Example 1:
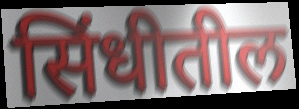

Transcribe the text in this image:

सिंधीतील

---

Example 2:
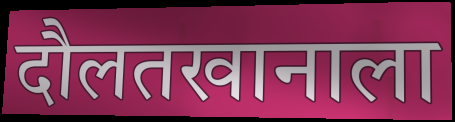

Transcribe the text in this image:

दौलतखानाला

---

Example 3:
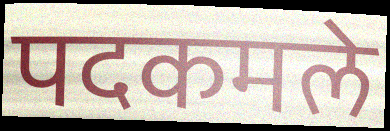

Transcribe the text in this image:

पदकमले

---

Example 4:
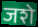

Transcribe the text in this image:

जशे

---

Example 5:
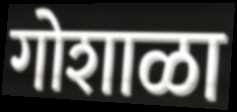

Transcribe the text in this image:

गोशाळा